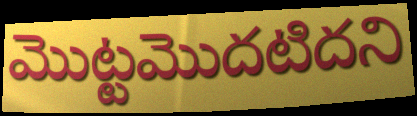
మొట్టమొదటిదని